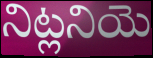
నిట్లనియె